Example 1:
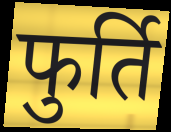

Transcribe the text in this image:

फुर्ति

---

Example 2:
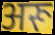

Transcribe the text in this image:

अरू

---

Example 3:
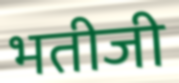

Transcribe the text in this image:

भतीजी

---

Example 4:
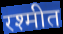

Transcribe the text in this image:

रश्मीत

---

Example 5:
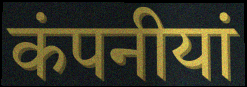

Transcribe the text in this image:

कंपनीयां